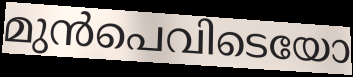
മുൻപെവിടെയോ